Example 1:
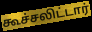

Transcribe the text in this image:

கூச்சலிட்டார்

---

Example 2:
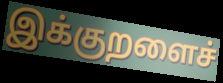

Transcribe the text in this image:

இக்குறளைச்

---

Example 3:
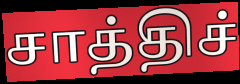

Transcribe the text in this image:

சாத்திச்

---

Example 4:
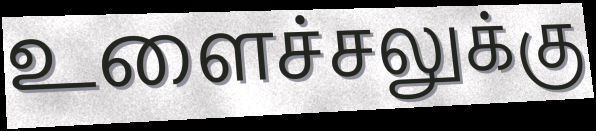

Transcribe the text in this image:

உளைச்சலுக்கு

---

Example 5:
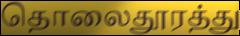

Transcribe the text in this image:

தொலைதூரத்து